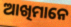
ଆଖିମାନେ